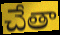
చేతా